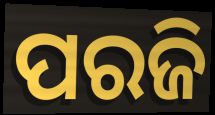
ପରଜି